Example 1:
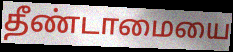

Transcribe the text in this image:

தீண்டாமையை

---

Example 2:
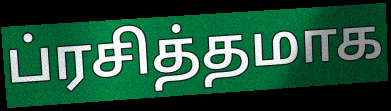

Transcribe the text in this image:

ப்ரசித்தமாக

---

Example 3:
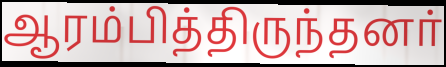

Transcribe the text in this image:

ஆரம்பித்திருந்தனர்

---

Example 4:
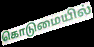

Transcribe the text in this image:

கொடுமையில்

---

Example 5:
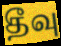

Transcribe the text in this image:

தீவு